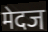
मेदज